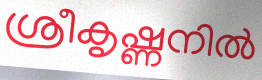
ശ്രീകൃഷ്ണനിൽ